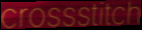
crossstitch